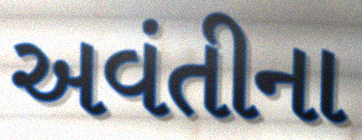
અવંતીના